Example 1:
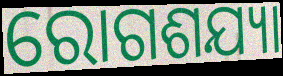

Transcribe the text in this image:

ରୋଗଶଯ୍ୟା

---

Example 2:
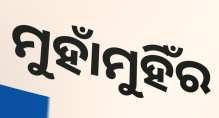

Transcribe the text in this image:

ମୁହାଁମୁହିଁର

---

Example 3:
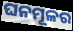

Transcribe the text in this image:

ଘନମୂଳର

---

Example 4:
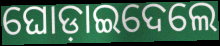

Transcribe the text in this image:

ଘୋଡ଼ାଇଦେଲେ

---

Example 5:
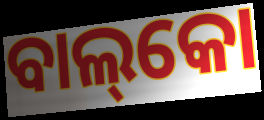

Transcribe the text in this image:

ବାଲ୍‌କୋ